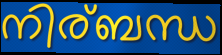
നിര്ബന്ധ